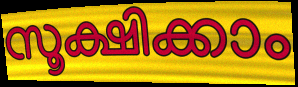
സൂക്ഷിക്കാം